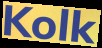
Kolk